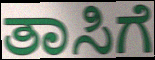
ತಾಸಿಗೆ